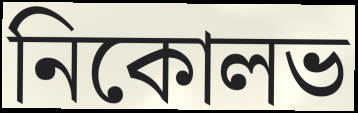
নিকোলভ